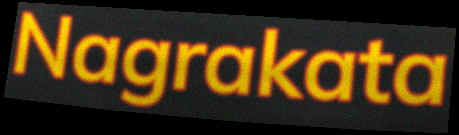
Nagrakata